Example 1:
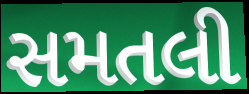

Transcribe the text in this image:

સમતલી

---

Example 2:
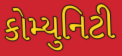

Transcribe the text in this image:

કોમ્યુનિટી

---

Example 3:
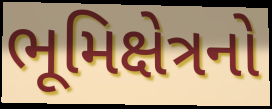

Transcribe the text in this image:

ભૂમિક્ષેત્રનો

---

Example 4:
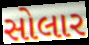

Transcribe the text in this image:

સોલાર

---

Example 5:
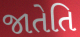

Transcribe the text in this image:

જાતેતિ